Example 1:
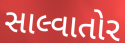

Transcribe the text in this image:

સાલ્વાતોર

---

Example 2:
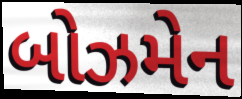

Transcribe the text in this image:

બોઝમેન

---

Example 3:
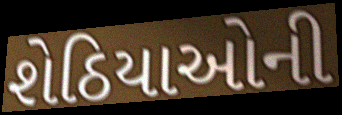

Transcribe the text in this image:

શેઠિયાઓની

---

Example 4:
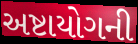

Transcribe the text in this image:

અષ્ટાયોગની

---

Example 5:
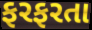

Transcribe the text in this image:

ફરફરતા